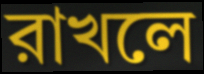
রাখলে